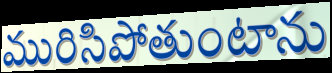
మురిసిపోతుంటాను